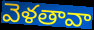
వెళతావా